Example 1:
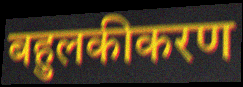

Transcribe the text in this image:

बहुलकीकरण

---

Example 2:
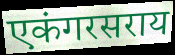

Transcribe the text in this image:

एकंगरसराय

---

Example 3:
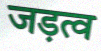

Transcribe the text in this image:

जड़त्व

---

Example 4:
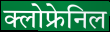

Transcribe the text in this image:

क्लोफ्रेनिल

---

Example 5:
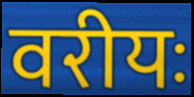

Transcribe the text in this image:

वरीयः